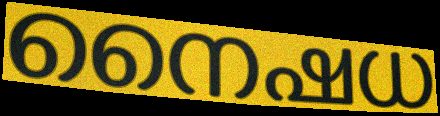
നൈഷധ